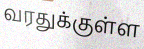
வரதுக்குள்ள